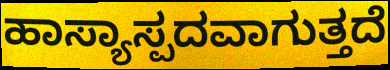
ಹಾಸ್ಯಾಸ್ಪದವಾಗುತ್ತದೆ